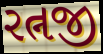
રત્નજી